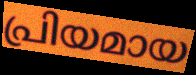
പ്രിയമായ